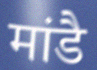
मांडै